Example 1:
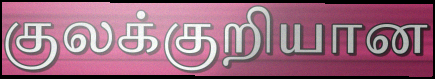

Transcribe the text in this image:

குலக்குறியான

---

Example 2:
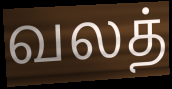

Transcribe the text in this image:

வலத்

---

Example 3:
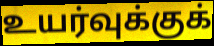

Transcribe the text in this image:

உயர்வுக்குக்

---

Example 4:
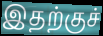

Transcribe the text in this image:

இதற்குச்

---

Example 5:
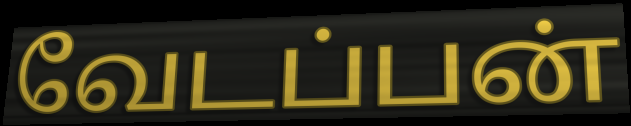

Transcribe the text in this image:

வேடப்பன்